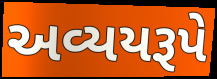
અવ્યયરૂપે